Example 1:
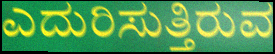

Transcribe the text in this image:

ಎದುರಿಸುತ್ತಿರುವ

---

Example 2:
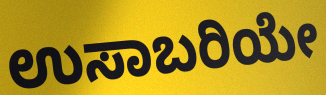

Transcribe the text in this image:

ಉಸಾಬರಿಯೇ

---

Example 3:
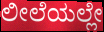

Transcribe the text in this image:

ಲೀಲೆಯಲ್ಲೇ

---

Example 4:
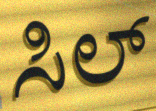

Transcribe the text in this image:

ಸಿಲ್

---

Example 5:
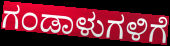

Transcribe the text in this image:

ಗಂಡಾಳುಗಳಿಗೆ